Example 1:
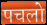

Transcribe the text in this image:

पचलो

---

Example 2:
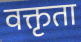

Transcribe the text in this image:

वक्तृता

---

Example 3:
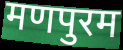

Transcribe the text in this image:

मणपुरम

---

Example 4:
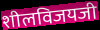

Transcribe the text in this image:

शीलविजयजी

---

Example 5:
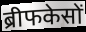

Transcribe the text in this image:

ब्रीफकेसों